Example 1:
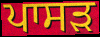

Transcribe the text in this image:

ਪਾਸੜ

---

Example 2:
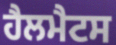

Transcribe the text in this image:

ਹੈਲਮੈਟਸ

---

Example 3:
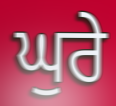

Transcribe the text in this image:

ਘੁਰੇ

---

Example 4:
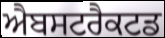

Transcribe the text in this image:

ਐਬਸਟਰੈਕਟਡ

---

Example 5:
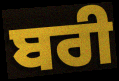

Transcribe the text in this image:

ਬਰੀ